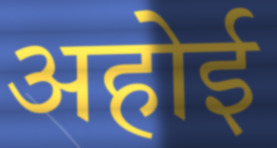
अहोई